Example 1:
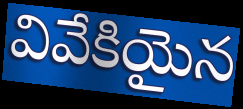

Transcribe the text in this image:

వివేకియైన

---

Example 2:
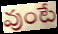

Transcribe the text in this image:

వుంటే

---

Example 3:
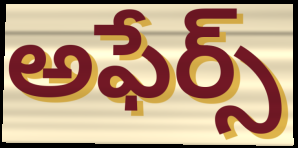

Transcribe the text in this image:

అఫేర్స్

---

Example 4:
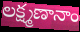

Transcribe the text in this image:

లక్ష్మణానాం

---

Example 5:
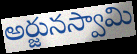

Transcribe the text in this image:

అర్జునస్వామి